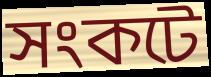
সংকটে